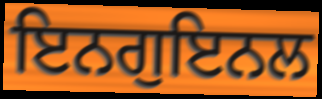
ਇਨਗੁਇਨਲ